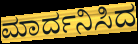
ಮಾರ್ದನಿಸಿದ